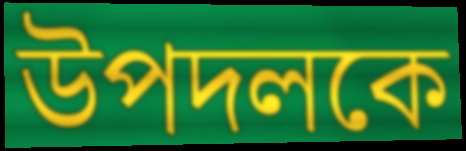
উপদলকে